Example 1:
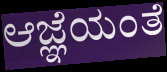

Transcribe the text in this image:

ಆಜ್ಞೆಯಂತೆ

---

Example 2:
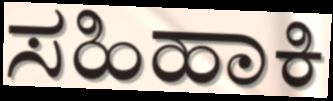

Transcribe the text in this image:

ಸಹಿಹಾಕಿ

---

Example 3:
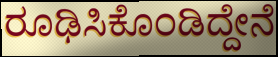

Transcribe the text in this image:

ರೂಢಿಸಿಕೊಂಡಿದ್ದೇನೆ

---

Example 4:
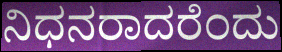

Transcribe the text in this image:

ನಿಧನರಾದರೆಂದು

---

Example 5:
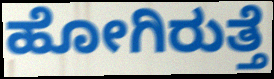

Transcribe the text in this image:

ಹೋಗಿರುತ್ತೆ